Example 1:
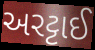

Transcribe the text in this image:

અરટ્ટાઈ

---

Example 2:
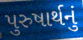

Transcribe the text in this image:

પુરુષાર્થનું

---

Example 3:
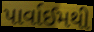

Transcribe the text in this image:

પાર્વાઈમથી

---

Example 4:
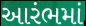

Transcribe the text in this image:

આરંભમાં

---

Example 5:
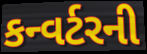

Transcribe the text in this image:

કન્વર્ટરની